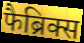
फैब्रिक्स